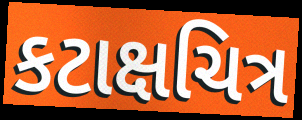
કટાક્ષચિત્ર